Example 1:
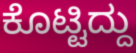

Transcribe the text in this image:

ಕೊಟ್ಟಿದ್ದು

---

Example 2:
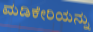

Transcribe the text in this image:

ಮಡಿಕೇರಿಯನ್ನು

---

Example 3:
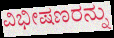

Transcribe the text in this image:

ವಿಭೀಷಣರನ್ನು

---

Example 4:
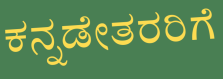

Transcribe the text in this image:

ಕನ್ನಡೇತರರಿಗೆ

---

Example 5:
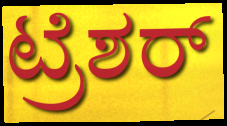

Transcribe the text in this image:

ಟ್ರೆಶರ್